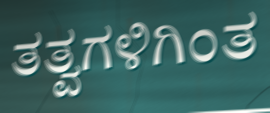
ತತ್ವಗಳಿಗಿಂತ